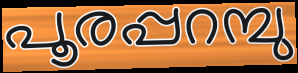
പൂരപ്പറമ്പു